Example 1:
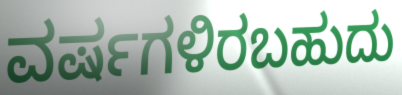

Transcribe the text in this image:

ವರ್ಷಗಳಿರಬಹುದು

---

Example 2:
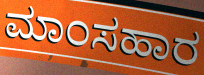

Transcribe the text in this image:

ಮಾಂಸಹಾರ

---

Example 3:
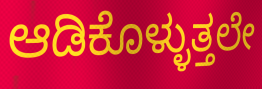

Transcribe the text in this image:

ಆಡಿಕೊಳ್ಳುತ್ತಲೇ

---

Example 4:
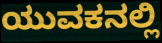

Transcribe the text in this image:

ಯುವಕನಲ್ಲಿ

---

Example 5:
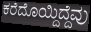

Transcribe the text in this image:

ಕರೆದೊಯ್ದಿದ್ದೆವು